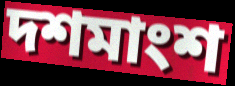
দশমাংশ